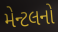
મેન્ટલનો